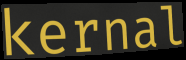
kernal